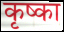
कृष्का